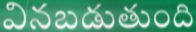
వినబడుతుంది